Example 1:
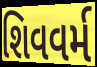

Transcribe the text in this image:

શિવવર્મ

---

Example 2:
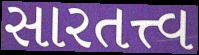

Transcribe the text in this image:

સારતત્ત્વ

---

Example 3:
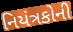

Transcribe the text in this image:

નિયંત્રકોની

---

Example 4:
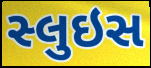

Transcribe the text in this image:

સ્લુઇસ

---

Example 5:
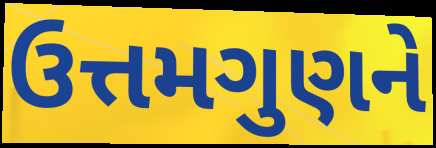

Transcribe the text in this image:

ઉત્તમગુણને